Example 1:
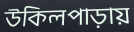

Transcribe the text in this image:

উকিলপাড়ায়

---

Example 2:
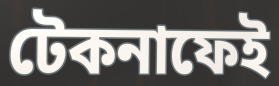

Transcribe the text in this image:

টেকনাফেই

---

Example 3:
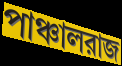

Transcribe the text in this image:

পাঞ্চালরাজ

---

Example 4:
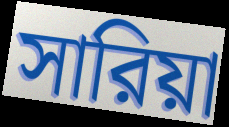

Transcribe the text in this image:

সারিয়া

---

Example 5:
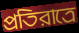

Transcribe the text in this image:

প্রতিরাত্রে